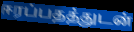
ஈரப்பதத்துடன்